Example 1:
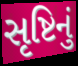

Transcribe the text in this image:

સૃષ્ટિનું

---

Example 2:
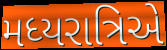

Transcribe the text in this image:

મધ્યરાત્રિએ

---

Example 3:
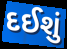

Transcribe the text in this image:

દઈશું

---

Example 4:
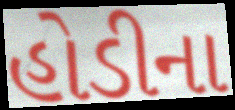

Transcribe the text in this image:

હોડીના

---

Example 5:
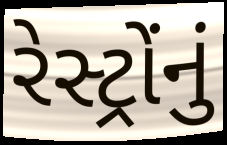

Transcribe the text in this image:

રેસ્ટ્રોંનું